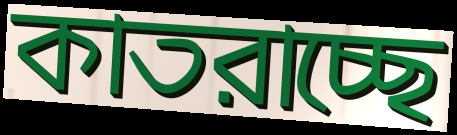
কাতরাচ্ছে